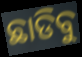
ଛାଡିବୁ